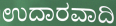
ಉದಾರವಾದಿ